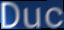
Duc